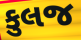
કુલજ